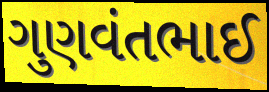
ગુણવંતભાઈ